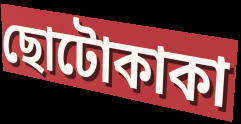
ছোটোকাকা